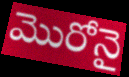
మొరోనై